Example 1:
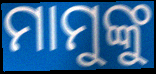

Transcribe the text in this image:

ମାମୁଙ୍କୁ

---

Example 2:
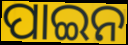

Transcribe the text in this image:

ପାଇନ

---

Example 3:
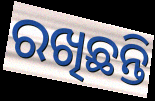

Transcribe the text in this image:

ରଖିଛନ୍ତି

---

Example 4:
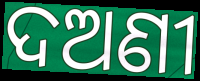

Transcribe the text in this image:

ଦଅଣୀ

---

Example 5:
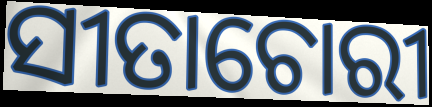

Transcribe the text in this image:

ସୀତାଚୋରୀ